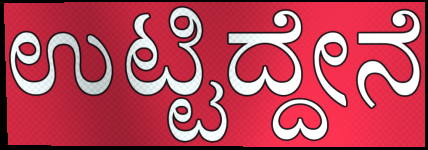
ಉಟ್ಟಿದ್ದೇನೆ